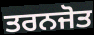
ਤਰਨਜੋਤ